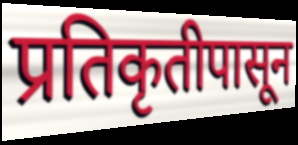
प्रतिकृतीपासून